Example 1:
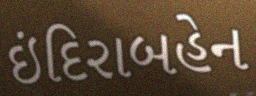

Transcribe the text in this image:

ઇંદિરાબહેન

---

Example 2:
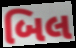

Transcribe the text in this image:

બિલ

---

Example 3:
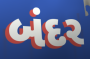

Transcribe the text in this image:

બંદર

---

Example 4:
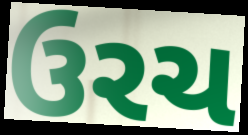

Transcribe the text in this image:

ઉરચ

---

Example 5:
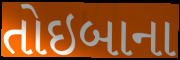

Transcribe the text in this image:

તોઇબાના